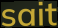
sait